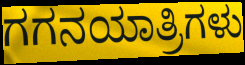
ಗಗನಯಾತ್ರಿಗಳು